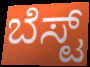
ಬೆಸ್ಟ್